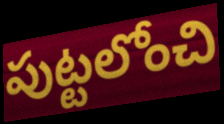
పుట్టలోంచి